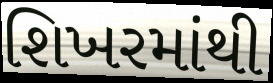
શિખરમાંથી